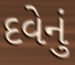
દવેનું